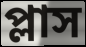
প্লাস